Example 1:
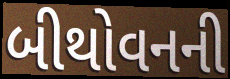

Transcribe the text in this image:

બીથોવનની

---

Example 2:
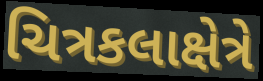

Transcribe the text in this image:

ચિત્રકલાક્ષેત્રે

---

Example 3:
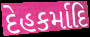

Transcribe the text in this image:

દેહકર્માદિ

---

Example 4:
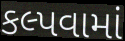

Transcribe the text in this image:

કલ્પવામાં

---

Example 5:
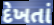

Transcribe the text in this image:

દેખતાં